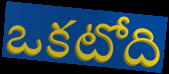
ఒకటోది